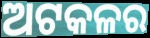
ଅଟକଳର